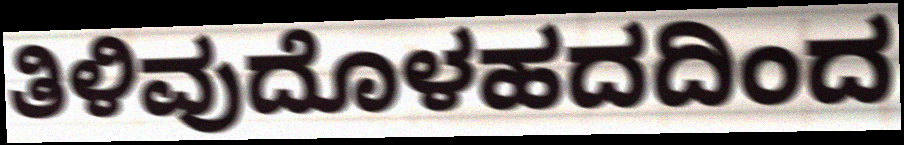
ತಿಳಿವುದೊಳಹದದಿಂದ